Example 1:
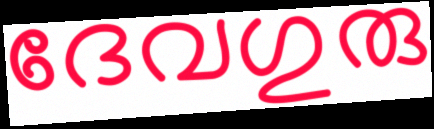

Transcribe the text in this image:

ദേവഗുരു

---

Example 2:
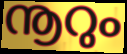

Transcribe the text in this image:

നൂറും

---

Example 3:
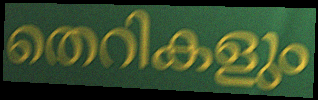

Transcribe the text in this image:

തെറികളും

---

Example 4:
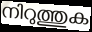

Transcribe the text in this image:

നിറുത്തുക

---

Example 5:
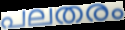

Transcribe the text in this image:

പലതരം